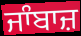
ਜਾੰਬਾਜ਼